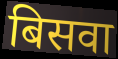
बिसवा